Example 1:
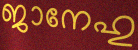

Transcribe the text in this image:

ജാനേഹു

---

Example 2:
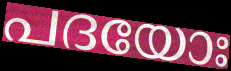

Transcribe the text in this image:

പദയോഃ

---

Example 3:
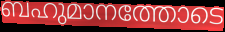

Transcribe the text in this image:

ബഹുമാനത്തോടെ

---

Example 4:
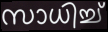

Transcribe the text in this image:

സാധിച്ച്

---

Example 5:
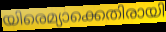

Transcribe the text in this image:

യിരെമ്യാക്കെതിരായി